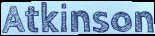
Atkinson